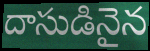
దాసుడినైన